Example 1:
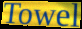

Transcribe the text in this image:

Towel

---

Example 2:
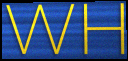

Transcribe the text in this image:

WH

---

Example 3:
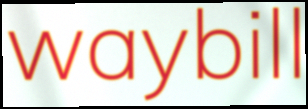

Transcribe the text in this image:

waybill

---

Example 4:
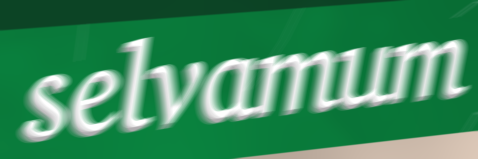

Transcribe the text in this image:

selvamum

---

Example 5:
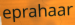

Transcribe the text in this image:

eprahaar